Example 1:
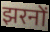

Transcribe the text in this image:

झरनों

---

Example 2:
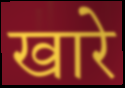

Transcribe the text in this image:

खारे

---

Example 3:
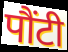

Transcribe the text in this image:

पौंटी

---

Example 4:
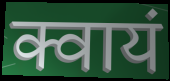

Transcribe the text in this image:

क्वायं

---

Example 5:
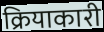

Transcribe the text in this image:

क्रियाकारी